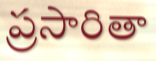
ప్రసారితా